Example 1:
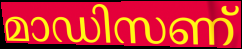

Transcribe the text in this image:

മാഡിസണ്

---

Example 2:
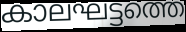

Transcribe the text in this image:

കാലഘട്ടത്തെ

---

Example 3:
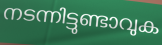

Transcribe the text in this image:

നടന്നിട്ടുണ്ടാവുക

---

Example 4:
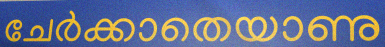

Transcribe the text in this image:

ചേർക്കാതെയാണു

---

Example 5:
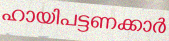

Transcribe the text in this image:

ഹായിപട്ടണക്കാർ